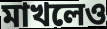
মাখলেও